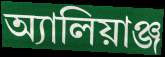
অ্যালিয়াঞ্জ